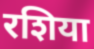
रशिया